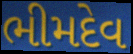
ભીમદેવ